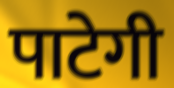
पाटेगी